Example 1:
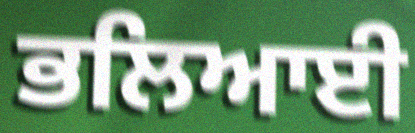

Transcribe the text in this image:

ਭਲਿਆਈ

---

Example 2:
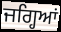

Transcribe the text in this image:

ਜਗ੍ਹਿਆਂ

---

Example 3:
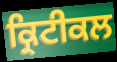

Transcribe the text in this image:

ਕ੍ਰਿਟੀਕਲ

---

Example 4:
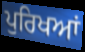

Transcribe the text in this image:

ਪੁਰਿਖਆਂ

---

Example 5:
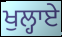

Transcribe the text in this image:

ਖੁਲ੍ਹਾਏ